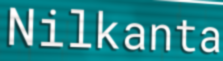
Nilkanta